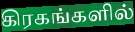
கிரகங்களில்